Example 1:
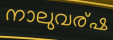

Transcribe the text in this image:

നാലുവര്ഷ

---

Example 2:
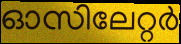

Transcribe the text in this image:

ഓസിലേറ്റർ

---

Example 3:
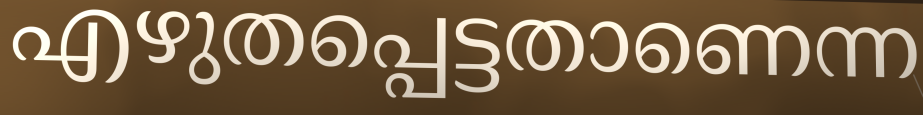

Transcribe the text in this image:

എഴുതപ്പെട്ടതാണെന്ന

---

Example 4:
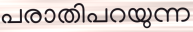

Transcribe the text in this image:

പരാതിപറയുന്ന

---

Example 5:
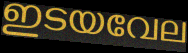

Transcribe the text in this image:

ഇടയവേല